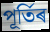
পূৰ্তিৰ